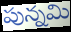
పున్నమి